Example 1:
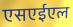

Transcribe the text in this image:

एसएईएल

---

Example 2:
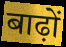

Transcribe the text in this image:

बाढ़ों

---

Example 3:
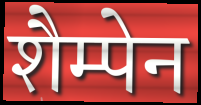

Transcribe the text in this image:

शैम्पेन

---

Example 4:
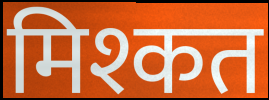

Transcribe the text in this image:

मिश्कत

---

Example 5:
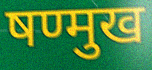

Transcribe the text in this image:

षण्मुख